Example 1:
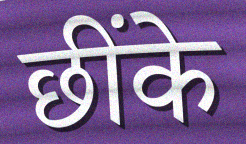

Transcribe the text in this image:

छींके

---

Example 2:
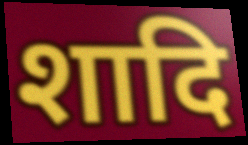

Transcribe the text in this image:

शादि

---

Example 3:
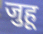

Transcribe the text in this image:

जुहू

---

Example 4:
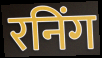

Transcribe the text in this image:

रनिंग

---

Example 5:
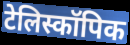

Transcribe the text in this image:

टेलिस्कॉपिक